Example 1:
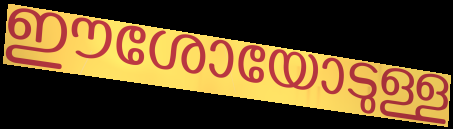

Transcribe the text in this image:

ഈശോയോടുള്ള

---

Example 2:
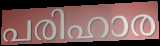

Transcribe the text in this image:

പരിഹാര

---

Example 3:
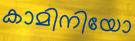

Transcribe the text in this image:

കാമിനിയോ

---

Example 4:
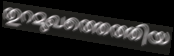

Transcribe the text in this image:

തുറമുഖത്തെത്തിയ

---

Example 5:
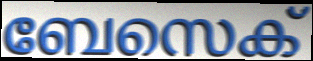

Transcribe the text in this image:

ബേസെക്